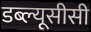
डब्ल्यूसीसी